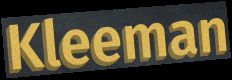
Kleeman